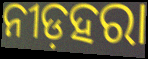
ନୀଡ଼ହରା